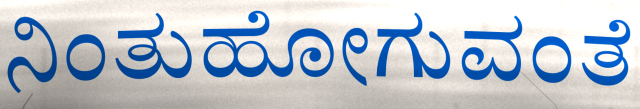
ನಿಂತುಹೋಗುವಂತೆ